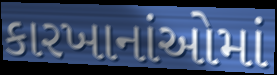
કારખાનાંઓમાં